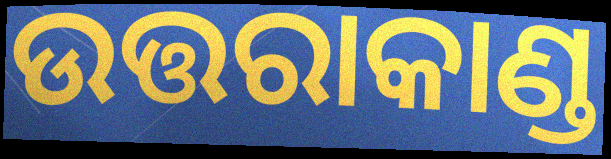
ଉତ୍ତରାକାଣ୍ଡ